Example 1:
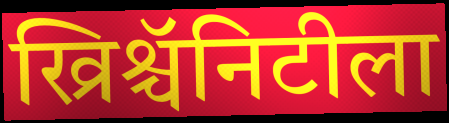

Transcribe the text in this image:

ख्रिश्चॅनिटीला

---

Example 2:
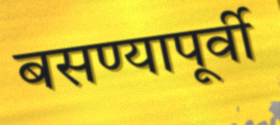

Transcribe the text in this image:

बसण्यापूर्वी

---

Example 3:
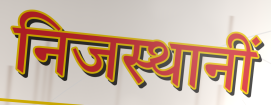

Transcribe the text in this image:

निजस्थानीं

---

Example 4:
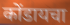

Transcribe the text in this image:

कोंडायचा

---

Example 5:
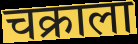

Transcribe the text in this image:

चक्राला